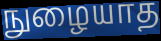
நுழையாத